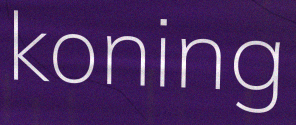
koning